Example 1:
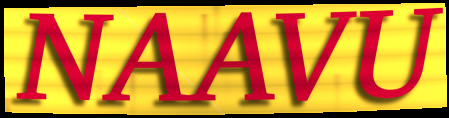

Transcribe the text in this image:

NAAVU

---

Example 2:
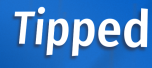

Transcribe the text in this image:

Tipped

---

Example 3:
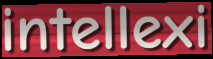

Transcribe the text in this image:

intellexi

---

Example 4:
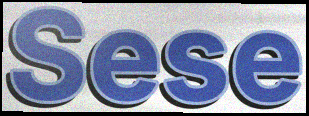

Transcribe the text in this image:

Sese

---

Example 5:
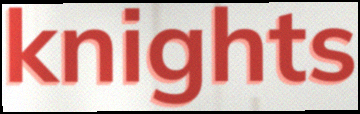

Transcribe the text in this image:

knights